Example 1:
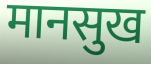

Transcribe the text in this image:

मानसुख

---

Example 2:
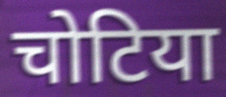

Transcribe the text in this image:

चोटिया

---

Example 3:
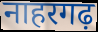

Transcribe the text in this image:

नाहरगढ़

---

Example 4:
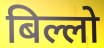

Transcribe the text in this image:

बिल्लो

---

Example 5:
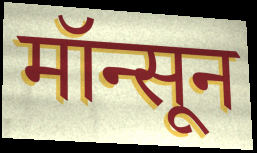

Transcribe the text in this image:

मॉन्सून